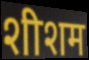
शीशम